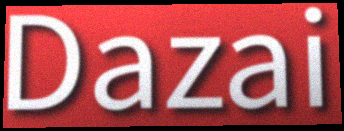
Dazai